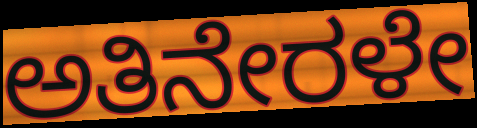
ಅತಿನೇರಳೇ